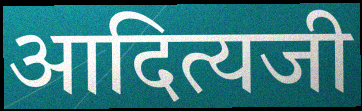
आदित्यजी